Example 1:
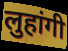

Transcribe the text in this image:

लुहांगी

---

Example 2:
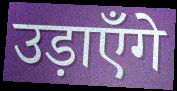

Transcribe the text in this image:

उड़ाएँगे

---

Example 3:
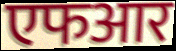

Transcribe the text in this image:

एफआर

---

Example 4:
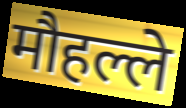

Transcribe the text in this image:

मौहल्ले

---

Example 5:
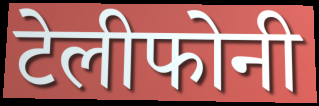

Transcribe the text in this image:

टेलीफोनी